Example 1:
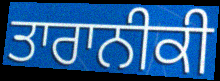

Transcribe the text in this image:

ਤਾਰਾਨੀਕੀ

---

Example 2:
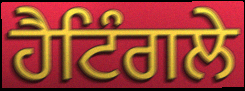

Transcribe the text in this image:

ਹੈਟਿੰਗਲੇ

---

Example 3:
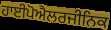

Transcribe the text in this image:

ਹਾਈਪੋਐਲਰਜੀਨਿਕ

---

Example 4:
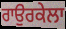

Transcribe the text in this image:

ਰਾਉਰਕੇਲਾ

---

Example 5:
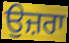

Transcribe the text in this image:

ਉਜ਼ਰਾ